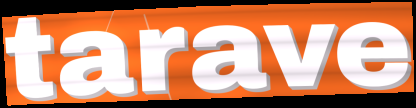
tarave